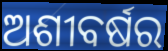
ଅଶୀବର୍ଷର